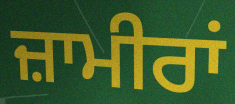
ਜ਼ਾਮੀਰਾਂ